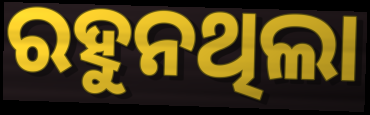
ରହୁନଥିଲା